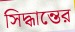
সিদ্ধান্তের